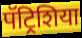
पॅट्रिशिया